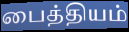
பைத்தியம்